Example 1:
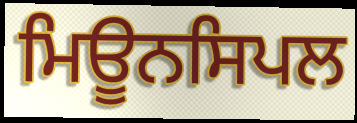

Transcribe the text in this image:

ਮਿਊਨਸਿਪਲ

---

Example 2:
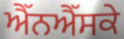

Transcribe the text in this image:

ਐੱਨਐੱਸਕੇ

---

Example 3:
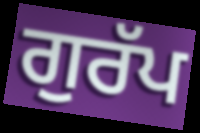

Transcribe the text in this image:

ਗੁਰੱਪ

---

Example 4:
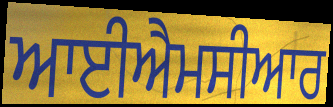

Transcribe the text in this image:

ਆਈਐਮਸੀਆਰ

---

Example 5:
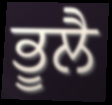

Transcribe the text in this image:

ਭੂਲੈ